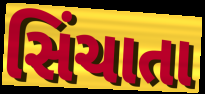
સિંચાતા